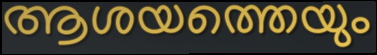
ആശയത്തെയും